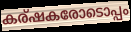
കര്ഷകരോടൊപ്പം